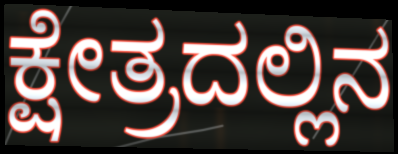
ಕ್ಷೇತ್ರದಲ್ಲಿನ